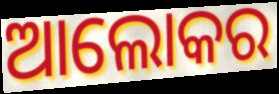
ଆଲୋକର